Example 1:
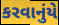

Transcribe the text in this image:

કરવાનુંયે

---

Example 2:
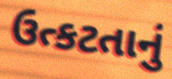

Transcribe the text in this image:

ઉત્કટતાનું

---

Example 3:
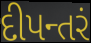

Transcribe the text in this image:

દીપન્તરં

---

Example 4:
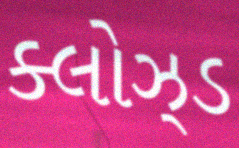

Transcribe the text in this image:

ક્લોઝ્ડ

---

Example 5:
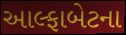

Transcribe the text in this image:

આલ્ફાબેટના